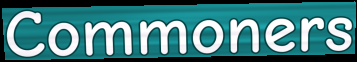
Commoners